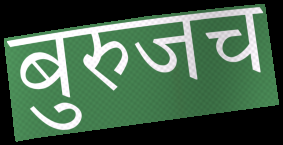
बुरुजच